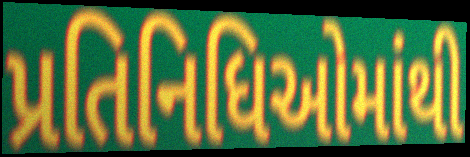
પ્રતિનિધિઓમાંથી